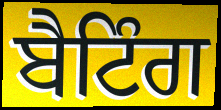
ਬੈਟਿੰਗ